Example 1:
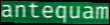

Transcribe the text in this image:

antequam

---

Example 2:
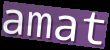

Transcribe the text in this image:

amat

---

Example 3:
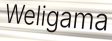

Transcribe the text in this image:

Weligama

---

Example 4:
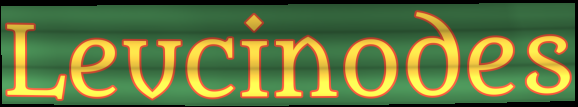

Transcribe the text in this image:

Leucinodes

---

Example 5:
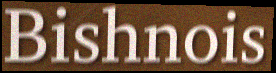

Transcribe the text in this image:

Bishnois